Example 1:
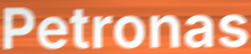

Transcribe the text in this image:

Petronas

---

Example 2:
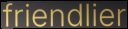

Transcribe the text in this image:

friendlier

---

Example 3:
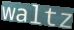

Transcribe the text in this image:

waltz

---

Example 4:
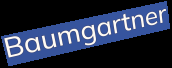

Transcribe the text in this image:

Baumgartner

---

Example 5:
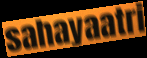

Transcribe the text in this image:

sahayaatri